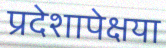
प्रदेशापेक्षया